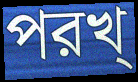
পরখ্